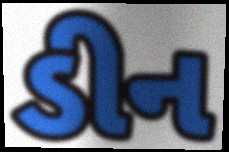
ડીન